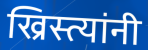
ख्रिस्त्यांनी